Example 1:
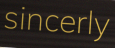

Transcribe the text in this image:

sincerly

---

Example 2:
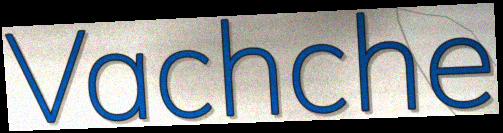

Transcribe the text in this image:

Vachche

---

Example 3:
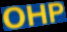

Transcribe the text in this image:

OHP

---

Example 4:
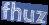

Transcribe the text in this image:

fhuz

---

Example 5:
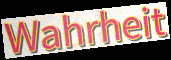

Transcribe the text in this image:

Wahrheit